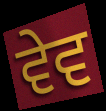
ਵੇਵ